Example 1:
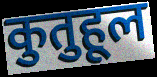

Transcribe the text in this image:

कुतुहूल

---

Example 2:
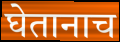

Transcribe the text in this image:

घेतानाच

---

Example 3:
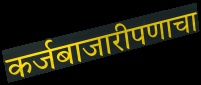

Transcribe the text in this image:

कर्जबाजारीपणाचा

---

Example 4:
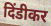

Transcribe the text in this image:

दिंडीकर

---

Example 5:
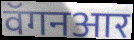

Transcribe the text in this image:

वॅगनआर